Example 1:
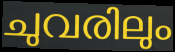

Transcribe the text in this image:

ചുവരിലും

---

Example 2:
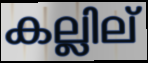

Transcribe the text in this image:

കല്ലില്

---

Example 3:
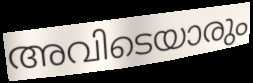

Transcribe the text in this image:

അവിടെയാരും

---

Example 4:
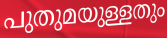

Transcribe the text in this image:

പുതുമയുള്ളതും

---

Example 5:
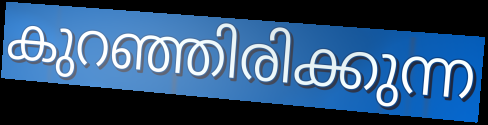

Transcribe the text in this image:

കുറഞ്ഞിരിക്കുന്ന